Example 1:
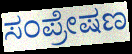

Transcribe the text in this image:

ಸಂಪ್ರೇಷಣ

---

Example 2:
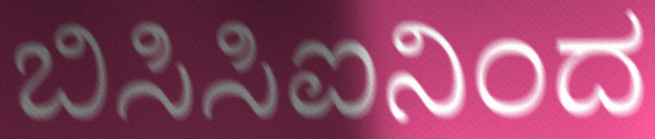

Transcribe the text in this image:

ಬಿಸಿಸಿಐನಿಂದ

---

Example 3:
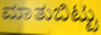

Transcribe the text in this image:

ಮಾತುಬಿಟ್ಟು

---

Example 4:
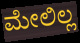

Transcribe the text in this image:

ಮೇಲಿಲ್ಲ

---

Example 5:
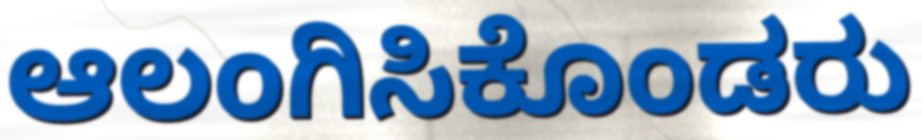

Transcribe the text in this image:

ಆಲಂಗಿಸಿಕೊಂಡರು